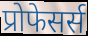
प्रोफेसर्स